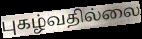
புகழ்வதில்லை